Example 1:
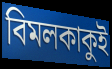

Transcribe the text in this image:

বিমলকাকুই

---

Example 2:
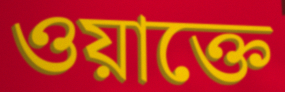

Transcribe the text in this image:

ওয়াক্তে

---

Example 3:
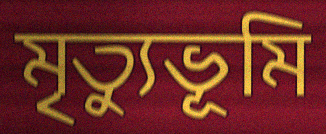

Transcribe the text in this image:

মৃত্যুভূমি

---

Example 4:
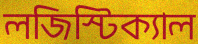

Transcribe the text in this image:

লজিস্টিক্যাল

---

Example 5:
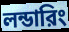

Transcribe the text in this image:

লন্ডারিং